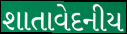
શાતાવેદનીય